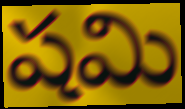
షమి